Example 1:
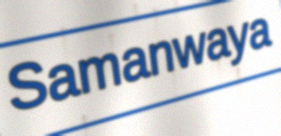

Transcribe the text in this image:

Samanwaya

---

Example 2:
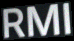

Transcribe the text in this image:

RMI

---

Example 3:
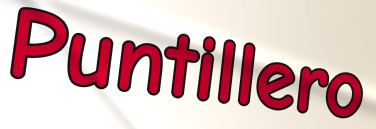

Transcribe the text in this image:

Puntillero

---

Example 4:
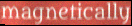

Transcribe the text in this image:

magnetically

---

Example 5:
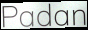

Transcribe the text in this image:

Padan